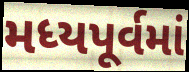
મધ્યપૂર્વમાં